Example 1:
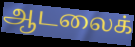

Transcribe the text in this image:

ஆடலைக்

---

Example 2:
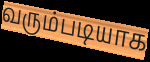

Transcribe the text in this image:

வரும்படியாக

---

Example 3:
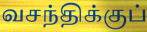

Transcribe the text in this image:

வசந்திக்குப்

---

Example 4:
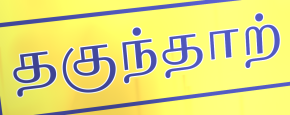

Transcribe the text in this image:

தகுந்தாற்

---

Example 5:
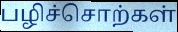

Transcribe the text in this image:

பழிச்சொற்கள்